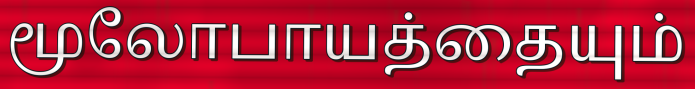
மூலோபாயத்தையும்